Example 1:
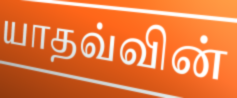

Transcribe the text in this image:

யாதவ்வின்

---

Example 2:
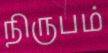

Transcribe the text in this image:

நிருபம்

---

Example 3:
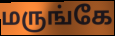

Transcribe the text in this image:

மருங்கே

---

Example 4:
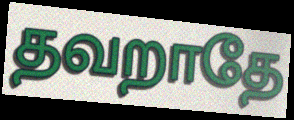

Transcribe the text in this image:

தவறாதே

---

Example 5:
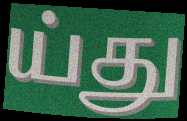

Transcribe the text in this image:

ய்து